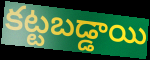
కట్టబడ్డాయి